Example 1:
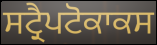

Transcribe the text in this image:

ਸਟ੍ਰੈਪਟੋਕਾਕਸ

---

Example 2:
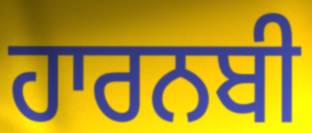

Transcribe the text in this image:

ਹਾਰਨਬੀ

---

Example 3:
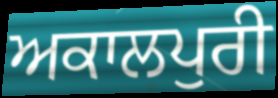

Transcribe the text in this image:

ਅਕਾਲਪੁਰੀ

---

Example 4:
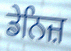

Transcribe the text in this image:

ਡੇਨਿਜ਼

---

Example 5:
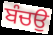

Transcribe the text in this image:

ਬੰਚਉ